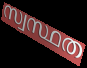
സ്വസ്ഥത